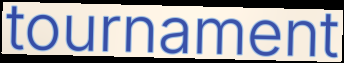
tournament